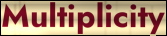
Multiplicity